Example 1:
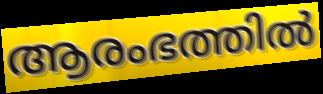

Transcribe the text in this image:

ആരംഭത്തിൽ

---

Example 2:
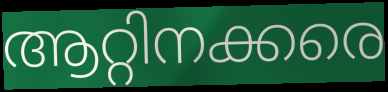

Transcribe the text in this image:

ആറ്റിനക്കരെ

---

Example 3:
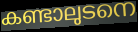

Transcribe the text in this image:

കണ്ടാലുടനെ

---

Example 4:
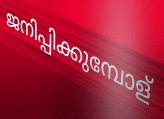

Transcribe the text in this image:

ജനിപ്പിക്കുമ്പോള്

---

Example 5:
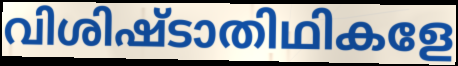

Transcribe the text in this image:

വിശിഷ്ടാതിഥികളേ